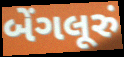
બેંગલૂરું